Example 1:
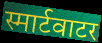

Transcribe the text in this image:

स्मार्टवाटर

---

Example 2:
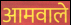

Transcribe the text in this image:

आमवाले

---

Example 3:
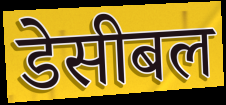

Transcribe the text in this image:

डेसीबल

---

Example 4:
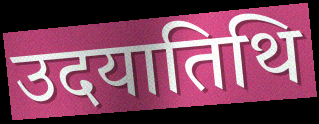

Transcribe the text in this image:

उदयातिथि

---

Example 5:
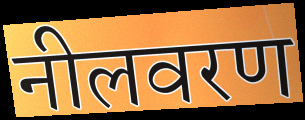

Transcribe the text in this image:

नीलवरण